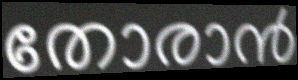
തോരാൻ